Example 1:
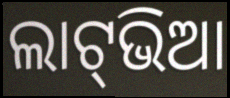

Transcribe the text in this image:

ଲାଟ୍‍ଭିଆ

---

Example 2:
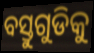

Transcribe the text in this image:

ବସ୍ତୁଗୁଡିକୁ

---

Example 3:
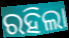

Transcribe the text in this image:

ରହିଲା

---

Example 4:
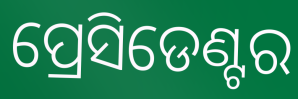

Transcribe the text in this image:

ପ୍ରେସିଡେଣ୍ଟର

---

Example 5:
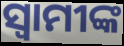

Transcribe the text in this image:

ସ୍ବାମୀଙ୍କ